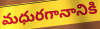
మధురగానానికి